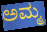
ಅಮ್ಮ